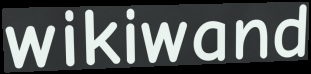
wikiwand